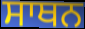
ਸਾਥਨ